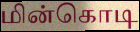
மின்கொடி